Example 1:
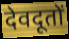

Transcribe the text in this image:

देवदूतों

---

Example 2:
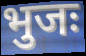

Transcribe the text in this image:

भुजः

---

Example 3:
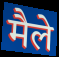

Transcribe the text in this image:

मैले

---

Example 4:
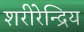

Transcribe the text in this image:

शरीरेन्द्रिय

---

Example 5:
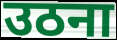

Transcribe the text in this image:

उठना